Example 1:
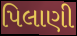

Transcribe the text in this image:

પિલાણી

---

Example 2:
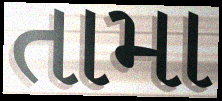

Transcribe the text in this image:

તામા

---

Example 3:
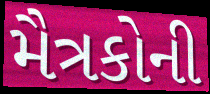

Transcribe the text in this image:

મૈત્રકોની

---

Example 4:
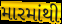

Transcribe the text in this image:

મારમાંથી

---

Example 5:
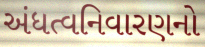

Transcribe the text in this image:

અંધત્વનિવારણનો